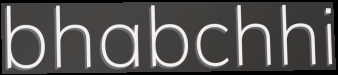
bhabchhi